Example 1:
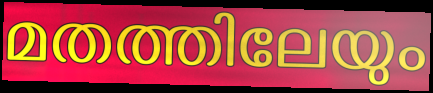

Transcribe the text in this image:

മതത്തിലേയും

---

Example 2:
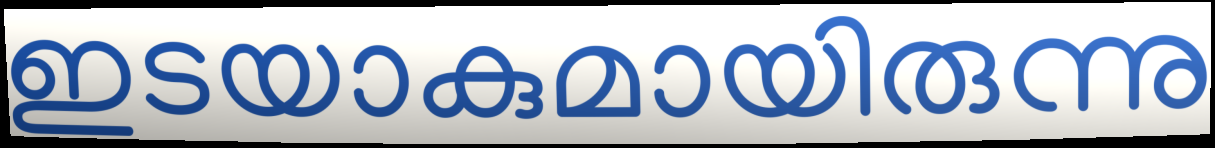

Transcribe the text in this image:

ഇടയാകുമായിരുന്നു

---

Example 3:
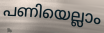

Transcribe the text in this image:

പണിയെല്ലാം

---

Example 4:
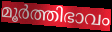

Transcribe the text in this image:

മൂർത്തിഭാവം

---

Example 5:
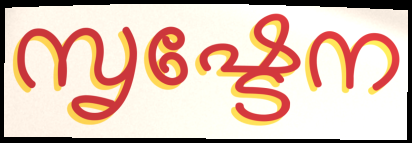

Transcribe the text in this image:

സൃഷ്ടേന